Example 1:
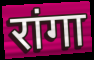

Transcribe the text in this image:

रांगा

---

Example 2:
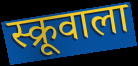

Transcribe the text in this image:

स्क्रूवाला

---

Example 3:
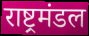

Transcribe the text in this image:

राष्ट्रमंडल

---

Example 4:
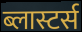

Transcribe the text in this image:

ब्लास्टर्स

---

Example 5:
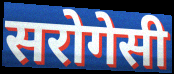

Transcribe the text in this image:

सरोगेसी